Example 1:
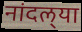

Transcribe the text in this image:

नांदल्या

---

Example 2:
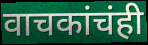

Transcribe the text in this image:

वाचकांचंही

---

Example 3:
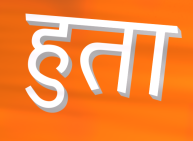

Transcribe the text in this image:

हुता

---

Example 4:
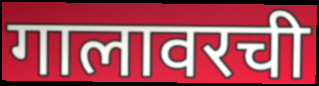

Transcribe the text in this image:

गालावरची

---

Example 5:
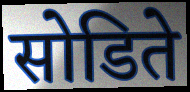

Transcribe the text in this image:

सोडिते